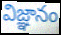
విజ్ఞానం